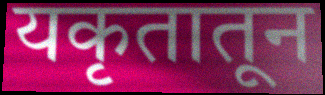
यकृतातून